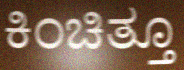
ಕಿಂಚಿತ್ತೂ